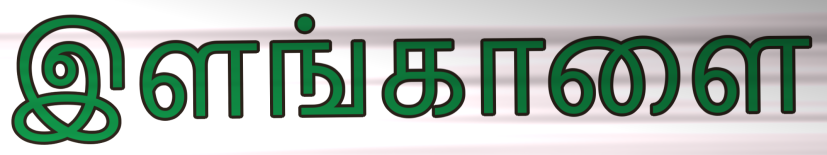
இளங்காளை